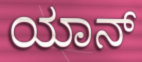
ಯಾನ್